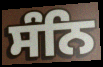
ਸੰਨਿ